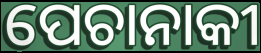
ପେଚାନାକୀ